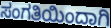
ಸಂಗತಿಯಿಂದಾಗಿ